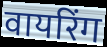
वायरिंग